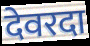
देवरदा